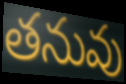
తనువు